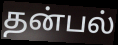
தன்பல்